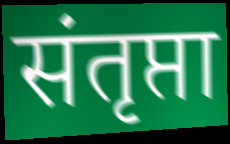
संतृप्ता